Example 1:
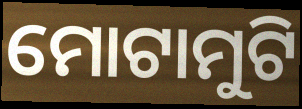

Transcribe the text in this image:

ମୋଟାମୁଟି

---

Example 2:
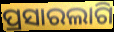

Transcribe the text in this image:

ପ୍ରସାରଲାଗି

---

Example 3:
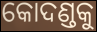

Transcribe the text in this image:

କୋଦଣ୍ଡକୁ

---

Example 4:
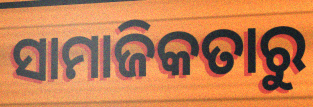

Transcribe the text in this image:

ସାମାଜିକତାରୁ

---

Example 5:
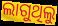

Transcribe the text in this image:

ଲାଗୁଥିଲୁ